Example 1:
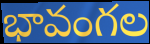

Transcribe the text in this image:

భావంగల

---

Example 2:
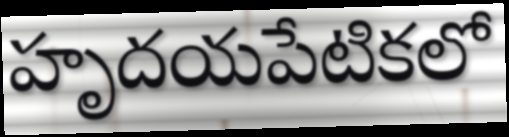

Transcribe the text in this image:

హృదయపేటికలో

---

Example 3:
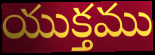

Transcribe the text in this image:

యుక్తము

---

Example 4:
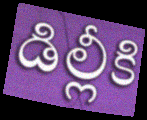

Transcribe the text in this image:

డిల్లీకి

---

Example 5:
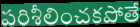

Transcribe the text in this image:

పరిశీలించకపోతే